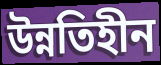
উন্নতিহীন